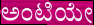
ಅಂಟಿಯೇ